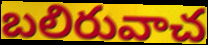
బలిరువాచ